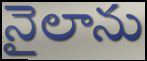
నైలాను